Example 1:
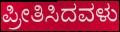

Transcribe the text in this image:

ಪ್ರೀತಿಸಿದವಳು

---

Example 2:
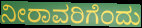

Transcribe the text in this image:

ನೀರಾವರಿಗೆಂದು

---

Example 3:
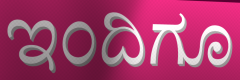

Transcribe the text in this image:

ಇಂದಿಗೂ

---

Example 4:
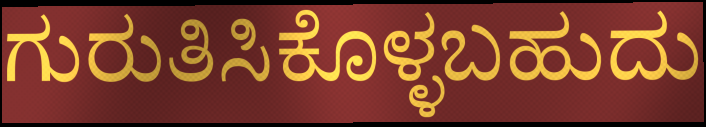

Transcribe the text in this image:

ಗುರುತಿಸಿಕೊಳ್ಳಬಹುದು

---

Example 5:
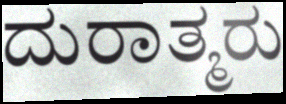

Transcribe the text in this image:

ದುರಾತ್ಮರು